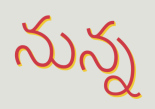
నున్న